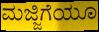
ಮಜ್ಜಿಗೆಯೂ